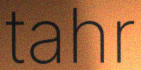
tahr